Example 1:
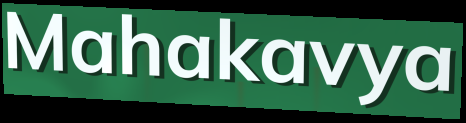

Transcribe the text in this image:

Mahakavya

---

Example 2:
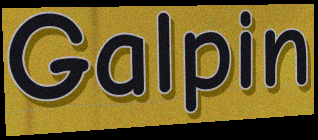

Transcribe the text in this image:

Galpin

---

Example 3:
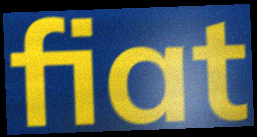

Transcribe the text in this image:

fiat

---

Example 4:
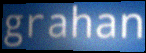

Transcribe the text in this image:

grahan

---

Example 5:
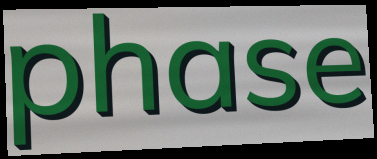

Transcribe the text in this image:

phase